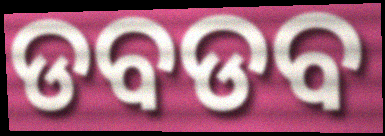
ଡବଡବ